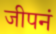
जीपनं